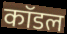
कॉडल